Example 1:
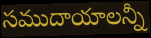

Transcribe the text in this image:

సముదాయాలన్నీ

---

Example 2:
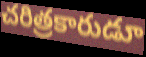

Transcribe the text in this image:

చరిత్రకారుడూ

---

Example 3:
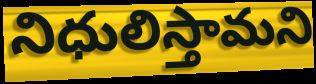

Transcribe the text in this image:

నిధులిస్తామని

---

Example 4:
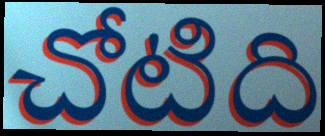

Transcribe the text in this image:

చోటిది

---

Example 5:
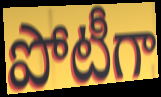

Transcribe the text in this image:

పోటీగా